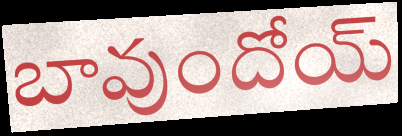
బావుందోయ్